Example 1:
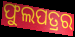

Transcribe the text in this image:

ଫୁଲପତ୍ରର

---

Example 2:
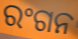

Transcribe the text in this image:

ରଂଗନ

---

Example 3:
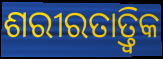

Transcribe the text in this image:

ଶରୀରତାତ୍ତ୍ଵିକ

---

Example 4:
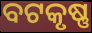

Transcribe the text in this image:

ବଟକୃଷ୍ଣ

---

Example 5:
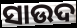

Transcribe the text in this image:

ସାଉଦ